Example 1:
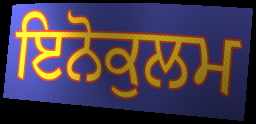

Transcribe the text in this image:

ਇਨੋਕੁਲਮ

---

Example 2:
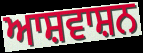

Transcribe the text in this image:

ਆਸ਼ਵਾਸ਼ਨ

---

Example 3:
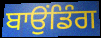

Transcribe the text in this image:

ਬਾਉਂਡਿੰਗ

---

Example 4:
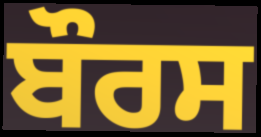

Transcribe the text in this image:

ਬੌਰਸ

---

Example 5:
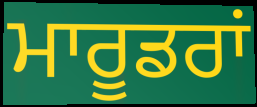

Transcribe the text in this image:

ਮਾਰੂਡਰਾਂ